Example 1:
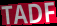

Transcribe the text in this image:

TADF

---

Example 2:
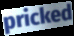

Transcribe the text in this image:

pricked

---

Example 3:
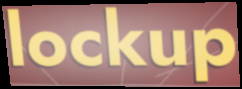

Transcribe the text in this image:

lockup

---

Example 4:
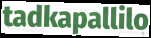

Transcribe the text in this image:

tadkapallilo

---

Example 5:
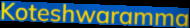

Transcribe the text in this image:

Koteshwaramma